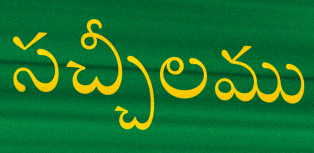
సచ్చీలము